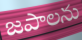
జపాలను